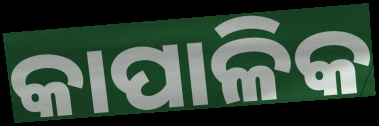
କାପାଳିକ